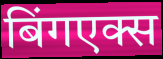
बिंगएक्स